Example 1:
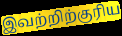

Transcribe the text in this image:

இவற்றிற்குரிய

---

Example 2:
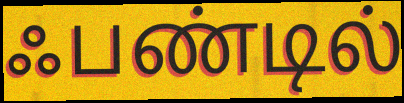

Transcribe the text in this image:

ஃபண்டில்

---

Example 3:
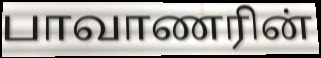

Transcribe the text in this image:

பாவாணரின்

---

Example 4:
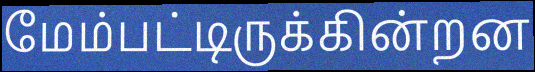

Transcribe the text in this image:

மேம்பட்டிருக்கின்றன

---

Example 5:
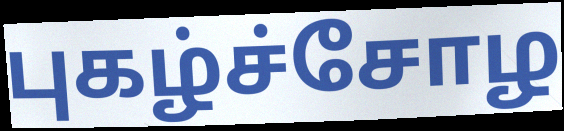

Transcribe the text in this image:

புகழ்ச்சோழ